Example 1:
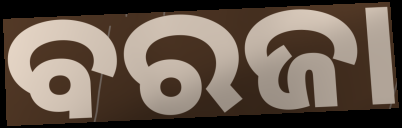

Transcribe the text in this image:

ବରଜା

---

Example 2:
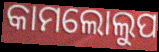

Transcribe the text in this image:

କାମଲୋଲୁପ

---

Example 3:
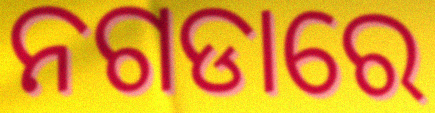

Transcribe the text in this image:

ନଗଡାରେ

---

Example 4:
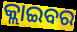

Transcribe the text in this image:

କ୍ଲାଇବର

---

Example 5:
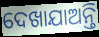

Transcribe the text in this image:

ଦେଖାଯାଅନ୍ତି